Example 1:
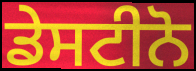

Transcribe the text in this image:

ਡੇਸਟੀਨੋ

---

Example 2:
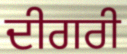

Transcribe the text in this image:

ਦੀਗਰੀ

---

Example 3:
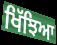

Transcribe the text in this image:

ਖਿੱਝਿਆ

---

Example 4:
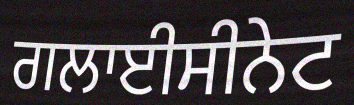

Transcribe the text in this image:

ਗਲਾਈਸੀਨੇਟ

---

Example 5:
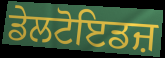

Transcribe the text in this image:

ਡੇਲਟੋਇਡਜ਼